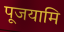
पूजयामि